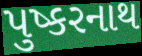
પુષ્કરનાથ